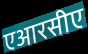
एआरसीए